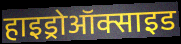
हाइड्रोऑक्साइड